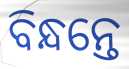
ବିନ୍ଧନ୍ତେ